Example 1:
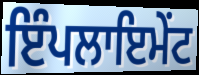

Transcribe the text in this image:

ਇੰਪਲਾਇਮੇਂਟ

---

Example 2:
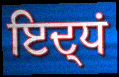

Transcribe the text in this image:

ਇਦ੍ਧਂ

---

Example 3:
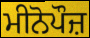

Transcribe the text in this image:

ਮੀਨੋਪੌਜ਼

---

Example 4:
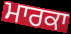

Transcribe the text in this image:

ਮਾਰਕਾ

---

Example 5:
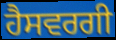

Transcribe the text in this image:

ਹੈਸਵਰਗੀ